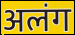
अलंग